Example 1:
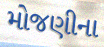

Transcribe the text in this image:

મોજણીના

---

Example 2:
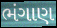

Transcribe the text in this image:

ભંગાણ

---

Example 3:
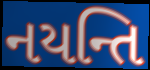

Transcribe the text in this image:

નયન્તિ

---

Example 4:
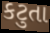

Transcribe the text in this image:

કટુતા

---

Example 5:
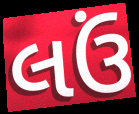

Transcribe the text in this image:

લઉં